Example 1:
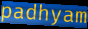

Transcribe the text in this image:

padhyam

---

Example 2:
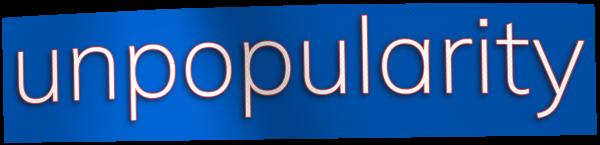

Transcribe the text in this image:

unpopularity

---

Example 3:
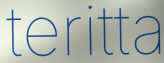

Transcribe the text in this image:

teritta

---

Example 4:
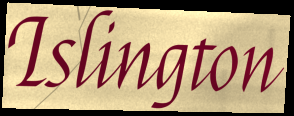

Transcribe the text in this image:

Islington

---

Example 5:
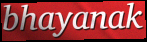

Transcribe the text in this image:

bhayanak